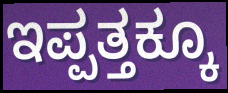
ಇಪ್ಪತ್ತಕ್ಕೂ